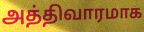
அத்திவாரமாக